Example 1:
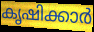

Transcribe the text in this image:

കൃഷിക്കാർ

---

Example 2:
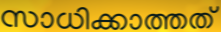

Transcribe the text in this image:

സാധിക്കാത്തത്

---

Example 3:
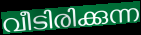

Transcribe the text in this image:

വീടിരിക്കുന്ന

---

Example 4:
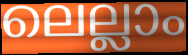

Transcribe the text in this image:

ലെല്ലാം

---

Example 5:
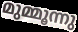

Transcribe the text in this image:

മുമ്മൂന്നു